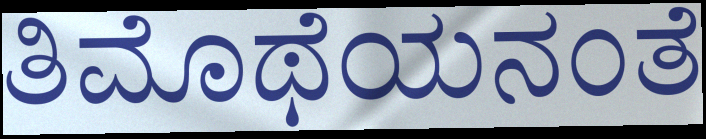
ತಿಮೊಥೆಯನಂತೆ